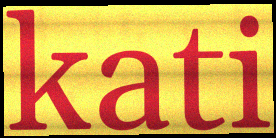
kati